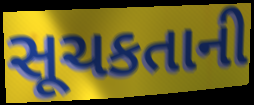
સૂચકતાની